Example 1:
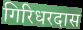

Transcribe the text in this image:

गिरिधरदास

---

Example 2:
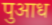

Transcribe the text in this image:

पुआध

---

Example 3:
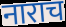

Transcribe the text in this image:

नाराच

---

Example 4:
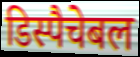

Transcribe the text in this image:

डिस्पैचेबल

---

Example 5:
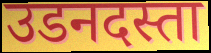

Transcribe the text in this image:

उडनदस्ता